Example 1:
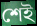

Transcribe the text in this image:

শেই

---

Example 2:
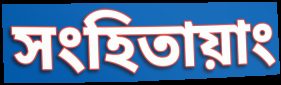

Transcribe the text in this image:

সংহিতায়াং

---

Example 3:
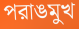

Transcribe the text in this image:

পরাঙমুখ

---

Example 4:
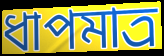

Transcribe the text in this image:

ধাপমাত্র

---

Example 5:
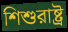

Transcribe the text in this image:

শিশুরাষ্ট্র